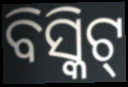
ବିସ୍କିଟ୍